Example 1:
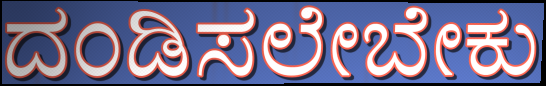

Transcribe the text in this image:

ದಂಡಿಸಲೇಬೇಕು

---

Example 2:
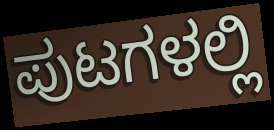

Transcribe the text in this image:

ಪುಟಗಳಲ್ಲಿ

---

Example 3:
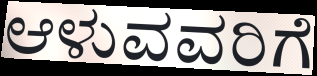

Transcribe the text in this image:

ಆಳುವವರಿಗೆ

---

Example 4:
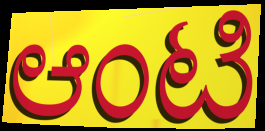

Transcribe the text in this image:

ಆಂಟಿ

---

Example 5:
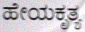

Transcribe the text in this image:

ಹೇಯಕೃತ್ಯ